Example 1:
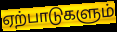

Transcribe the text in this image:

ஏற்பாடுகளும்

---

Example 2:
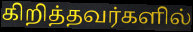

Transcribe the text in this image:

கிறித்தவர்களில்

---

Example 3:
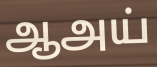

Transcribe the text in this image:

ஆஅய்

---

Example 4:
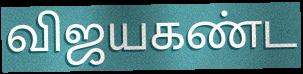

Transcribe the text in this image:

விஜயகண்ட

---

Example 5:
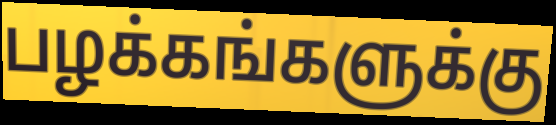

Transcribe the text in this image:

பழக்கங்களுக்கு